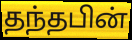
தந்தபின்